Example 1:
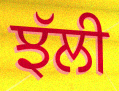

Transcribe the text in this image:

ਝੱਲੀ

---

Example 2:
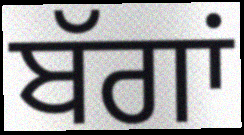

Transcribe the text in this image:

ਬੱਗਾਂ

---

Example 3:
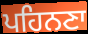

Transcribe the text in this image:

ਪਹਿਨਣਾ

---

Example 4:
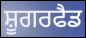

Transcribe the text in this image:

ਸ਼ੂਗਰਫੈਡ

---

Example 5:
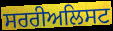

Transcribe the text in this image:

ਸਰਰੀਅਲਿਸਟ